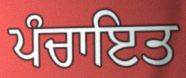
ਪੰਚਾਇਤ